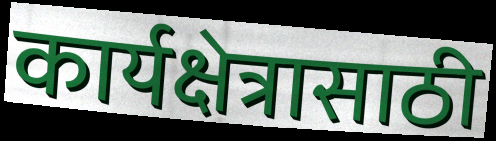
कार्यक्षेत्रासाठी